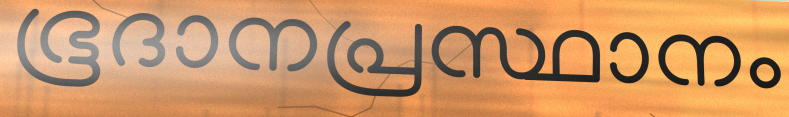
ഭൂദാനപ്രസ്ഥാനം